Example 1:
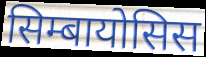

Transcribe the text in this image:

सिम्बायोसिस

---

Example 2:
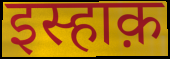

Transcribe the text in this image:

इस्हाक़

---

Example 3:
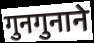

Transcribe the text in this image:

गुनगुनाने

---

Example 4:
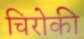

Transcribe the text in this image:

चिरोकी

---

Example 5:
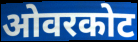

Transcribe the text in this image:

ओवरकोट